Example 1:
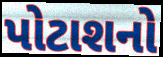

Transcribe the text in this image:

પોટાશનો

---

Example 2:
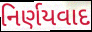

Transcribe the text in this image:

નિર્ણયવાદ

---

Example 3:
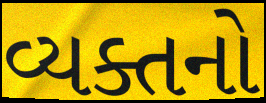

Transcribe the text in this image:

વ્યક્તનો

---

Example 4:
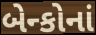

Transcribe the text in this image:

બેન્કોનાં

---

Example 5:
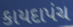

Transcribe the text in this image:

કાયદાપંચ